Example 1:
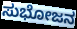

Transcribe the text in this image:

ಸುಭೋಜನ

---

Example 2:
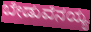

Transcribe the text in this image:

ಬೇಡುವೆನಯ್ಯ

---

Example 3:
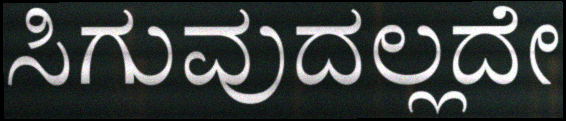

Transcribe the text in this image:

ಸಿಗುವುದಲ್ಲದೇ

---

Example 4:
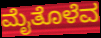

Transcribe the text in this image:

ಮೈತೊಳೆವ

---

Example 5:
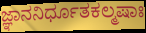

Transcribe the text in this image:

ಜ್ಞಾನನಿರ್ಧೂತಕಲ್ಮಷಾಃ